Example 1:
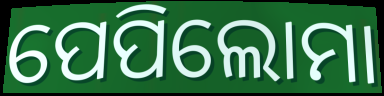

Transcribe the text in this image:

ପେପିଲୋମା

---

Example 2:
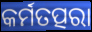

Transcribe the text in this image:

କର୍ମତତ୍ପରା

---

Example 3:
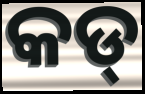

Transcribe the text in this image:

କଡ୍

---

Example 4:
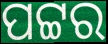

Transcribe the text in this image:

ପଟ୍ଟର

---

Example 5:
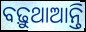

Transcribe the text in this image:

ବଢ଼ୁଥାଆନ୍ତି